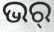
ଭର୍